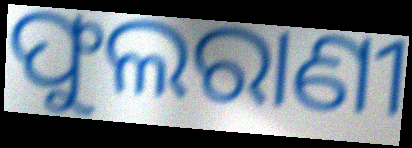
ଫୁଲରାଣୀ